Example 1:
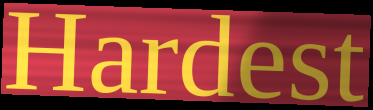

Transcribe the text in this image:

Hardest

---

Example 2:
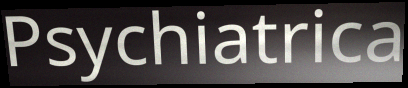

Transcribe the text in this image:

Psychiatrica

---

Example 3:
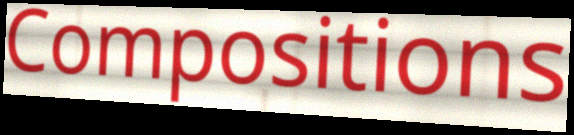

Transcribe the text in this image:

Compositions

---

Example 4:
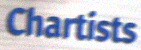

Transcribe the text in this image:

Chartists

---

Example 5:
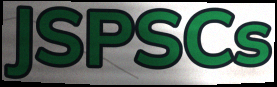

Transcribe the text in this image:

JSPSCs